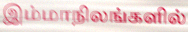
இம்மாநிலங்களில்